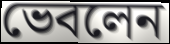
ভেবলেন